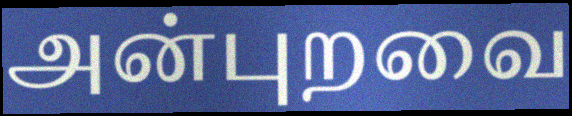
அன்புறவை